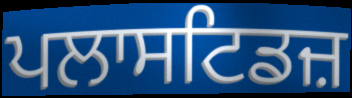
ਪਲਾਸਟਿਡਜ਼